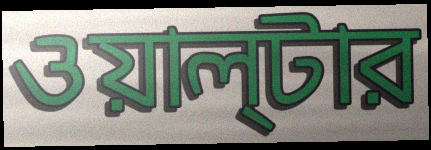
ওয়াল্‌টার